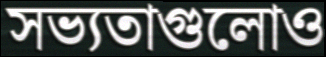
সভ্যতাগুলোও